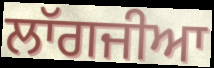
ਲਾੱਗਜੀਆ